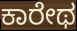
ಕಾರೇಥ